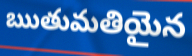
ఋతుమతియైన